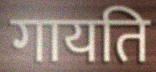
गायति